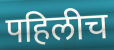
पहिलीच